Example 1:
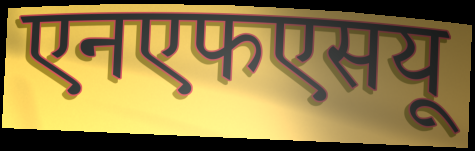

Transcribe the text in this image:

एनएफएसयू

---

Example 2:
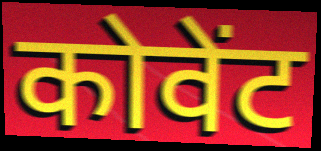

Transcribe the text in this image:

कोवेंट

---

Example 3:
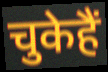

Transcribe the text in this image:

चुकेहैं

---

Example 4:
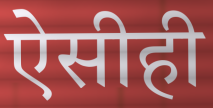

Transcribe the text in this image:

ऐसीही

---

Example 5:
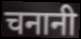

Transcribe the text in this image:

चनानी